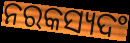
ନରକସ୍ୟଦଂ